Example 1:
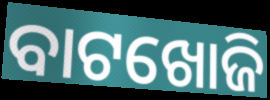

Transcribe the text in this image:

ବାଟଖୋଜି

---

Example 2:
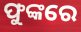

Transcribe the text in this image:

ଫୁଙ୍କରେ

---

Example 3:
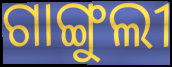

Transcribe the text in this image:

ଗାଙ୍ଗୁଲୀ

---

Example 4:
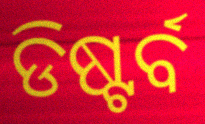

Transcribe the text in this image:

ଡିଷ୍ଟର୍ବ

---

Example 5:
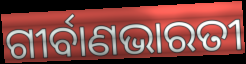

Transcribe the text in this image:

ଗୀର୍ବାଣଭାରତୀ